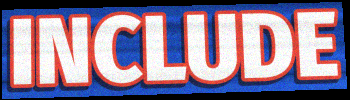
INCLUDE